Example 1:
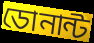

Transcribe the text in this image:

ডোনান্ট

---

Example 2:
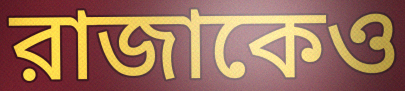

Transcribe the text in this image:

রাজাকেও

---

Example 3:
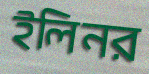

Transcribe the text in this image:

ইলিনর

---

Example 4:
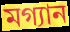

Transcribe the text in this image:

মগ্যান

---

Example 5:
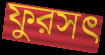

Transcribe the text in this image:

ফুরসৎ